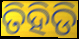
ତିହିଡି